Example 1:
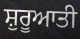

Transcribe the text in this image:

ਸ਼ੁਰੂਆਤੀ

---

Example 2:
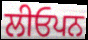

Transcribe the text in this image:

ਲੀਓਪਨ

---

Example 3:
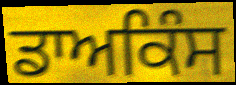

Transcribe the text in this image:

ਡਾਅਕਿੰਸ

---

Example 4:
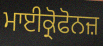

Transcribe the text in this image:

ਮਾਈਕ੍ਰੋਫੋਨਜ਼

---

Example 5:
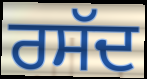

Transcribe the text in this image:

ਰਸੱਦ